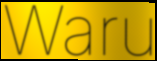
Waru